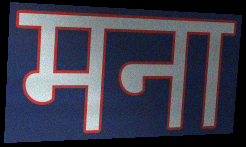
मना